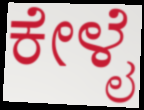
ಕೇಳೈ